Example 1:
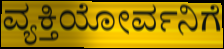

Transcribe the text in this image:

ವ್ಯಕ್ತಿಯೋರ್ವನಿಗೆ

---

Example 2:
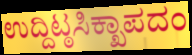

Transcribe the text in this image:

ಉದ್ದಿಟ್ಠಸಿಕ್ಖಾಪದಂ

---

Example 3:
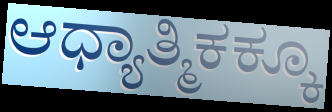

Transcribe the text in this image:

ಆಧ್ಯಾತ್ಮಿಕಕ್ಕೂ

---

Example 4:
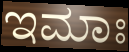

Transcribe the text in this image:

ಇಮಾಃ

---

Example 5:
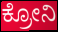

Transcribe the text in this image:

ಕ್ರೋನಿ